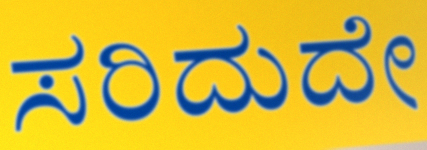
ಸರಿದುದೇ